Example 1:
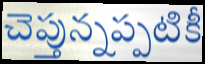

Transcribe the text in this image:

చెప్తున్నప్పటికీ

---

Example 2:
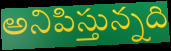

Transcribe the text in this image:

అనిపిస్తున్నది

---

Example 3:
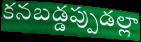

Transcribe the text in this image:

కనబడ్డప్పుడల్లా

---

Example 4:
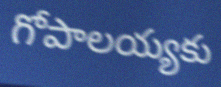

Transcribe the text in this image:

గోపాలయ్యకు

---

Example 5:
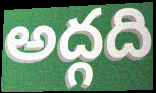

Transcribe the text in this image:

అద్గది